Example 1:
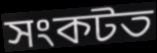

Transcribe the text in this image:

সংকটত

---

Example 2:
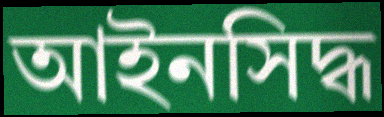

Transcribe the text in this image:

আইনসিদ্ধ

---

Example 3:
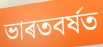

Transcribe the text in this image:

ভাৰতবৰ্ষত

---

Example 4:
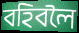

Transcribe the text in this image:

বহিবলৈ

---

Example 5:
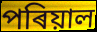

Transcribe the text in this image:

পৰিয়াল